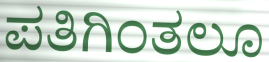
ಪತಿಗಿಂತಲೂ